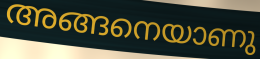
അങ്ങനെയാണു